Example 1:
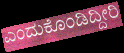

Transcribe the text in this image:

ಎಂದುಕೊಂಡಿದ್ದೀರಿ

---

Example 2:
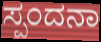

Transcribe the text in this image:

ಸ್ಪಂದನಾ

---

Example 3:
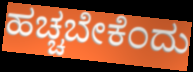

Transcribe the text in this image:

ಹಚ್ಚಬೇಕೆಂದು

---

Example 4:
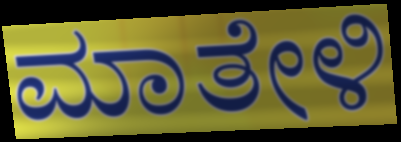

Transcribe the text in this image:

ಮಾತೇಳಿ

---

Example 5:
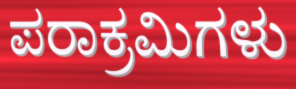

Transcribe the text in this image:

ಪರಾಕ್ರಮಿಗಳು